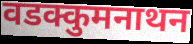
वडक्कुमनाथन